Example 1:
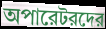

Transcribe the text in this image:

অপারেটরদের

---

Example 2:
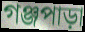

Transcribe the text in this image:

গঞ্জপাড়া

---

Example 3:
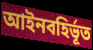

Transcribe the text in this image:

আইনবহির্ভূত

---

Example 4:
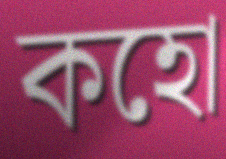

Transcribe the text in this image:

কহো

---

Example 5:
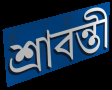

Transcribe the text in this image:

শ্রাবন্তী